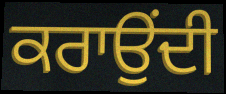
ਕਰਾਉਂਦੀ